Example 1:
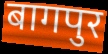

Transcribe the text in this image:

बागपुर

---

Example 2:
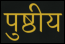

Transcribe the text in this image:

पुष्ठीय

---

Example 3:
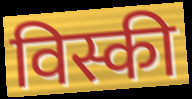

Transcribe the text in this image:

विस्की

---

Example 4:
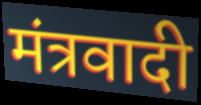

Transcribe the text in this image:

मंत्रवादी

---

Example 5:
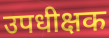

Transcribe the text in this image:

उपधीक्षक